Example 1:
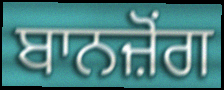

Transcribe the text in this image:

ਬਾਨਜ਼ੋਂਗ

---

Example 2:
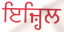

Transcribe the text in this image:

ਇਜ਼੍ਹਿਲ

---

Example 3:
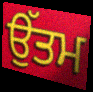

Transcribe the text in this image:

ਉੱਤਮ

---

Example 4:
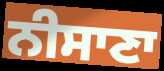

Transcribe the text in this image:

ਨੀਸਾਣਾ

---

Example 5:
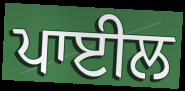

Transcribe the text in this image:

ਪਾਈਲ